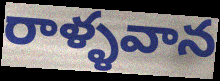
రాళ్ళవాన